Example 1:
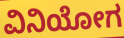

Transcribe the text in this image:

ವಿನಿಯೋಗ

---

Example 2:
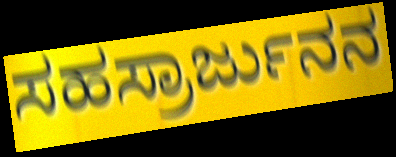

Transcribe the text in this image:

ಸಹಸ್ರಾರ್ಜುನನ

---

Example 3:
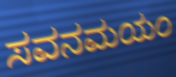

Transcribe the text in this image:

ಸವನಮಯಂ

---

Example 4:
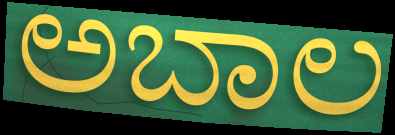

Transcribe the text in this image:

ಅಬಾಲ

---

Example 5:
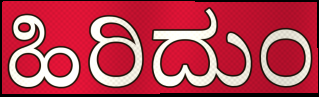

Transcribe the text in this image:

ಹಿರಿದುಂ